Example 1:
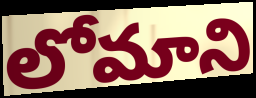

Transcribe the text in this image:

లోమాని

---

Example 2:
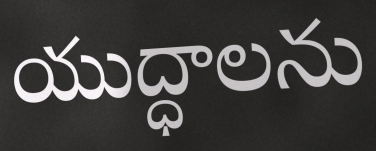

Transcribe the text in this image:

యుద్ధాలను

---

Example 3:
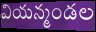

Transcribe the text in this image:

వియన్మండల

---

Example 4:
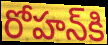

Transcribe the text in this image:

రోహన్‌కి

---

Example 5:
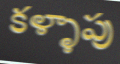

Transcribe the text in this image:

కళ్ళాపు